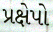
પ્રક્ષેપો